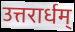
उत्तरार्धम्